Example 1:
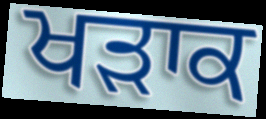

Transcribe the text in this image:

ਖੜਾਕ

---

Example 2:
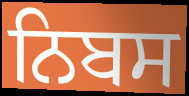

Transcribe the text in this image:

ਨਿਬਸ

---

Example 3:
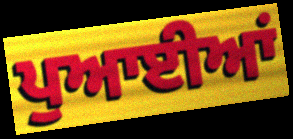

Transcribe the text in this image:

ਪੁਆਈਆਂ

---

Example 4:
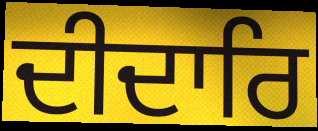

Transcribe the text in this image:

ਦੀਦਾਰਿ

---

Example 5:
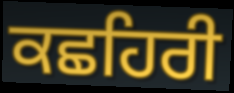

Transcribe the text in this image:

ਕਛਹਿਰੀ